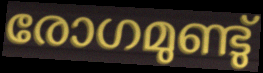
രോഗമുണ്ടു്